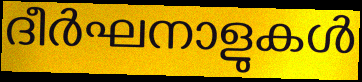
ദീർഘനാളുകൾ